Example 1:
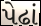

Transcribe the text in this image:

પેઢાં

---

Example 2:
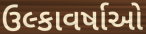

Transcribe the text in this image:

ઉલ્કાવર્ષાઓ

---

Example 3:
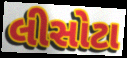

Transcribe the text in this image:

લીસોટા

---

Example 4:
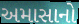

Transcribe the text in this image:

અમાસાનો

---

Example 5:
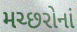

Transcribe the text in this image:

મચ્છરોનાં